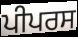
ਪੀਪਰਸ